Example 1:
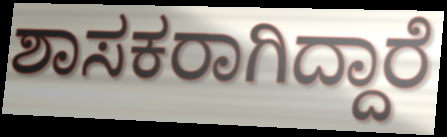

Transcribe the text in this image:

ಶಾಸಕರಾಗಿದ್ದಾರೆ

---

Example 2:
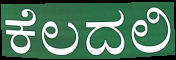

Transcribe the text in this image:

ಕೆಲದಲಿ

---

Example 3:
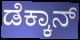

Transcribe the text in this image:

ಡೆಕ್ಕಾನ್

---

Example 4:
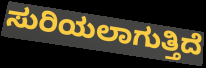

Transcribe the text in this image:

ಸುರಿಯಲಾಗುತ್ತಿದೆ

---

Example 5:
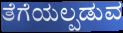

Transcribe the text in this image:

ತೆಗೆಯಲ್ಪಡುವ